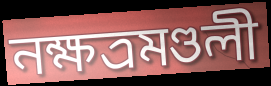
নক্ষত্রমণ্ডলী